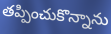
తప్పించుకొన్నాను